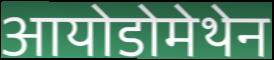
आयोडोमेथेन